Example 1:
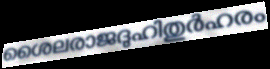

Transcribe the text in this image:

ശൈലരാജദുഹിതുർഹരം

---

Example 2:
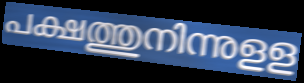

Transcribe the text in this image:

പക്ഷത്തുനിന്നുളള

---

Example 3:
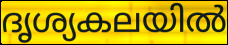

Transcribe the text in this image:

ദൃശ്യകലയിൽ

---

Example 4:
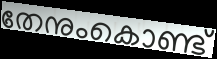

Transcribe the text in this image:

തേനുംകൊണ്ട്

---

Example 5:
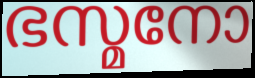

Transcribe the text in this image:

ഭസ്മനോ